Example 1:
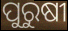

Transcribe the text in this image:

ପୁରୁଷୀ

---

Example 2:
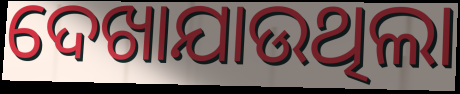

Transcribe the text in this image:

ଦେଖାଯାଉଥିଲା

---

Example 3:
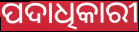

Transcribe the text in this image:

ପଦାଧିକାରୀ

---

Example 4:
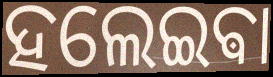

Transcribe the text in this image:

ହଲେଇଵା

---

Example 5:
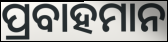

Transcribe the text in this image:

ପ୍ରବାହମାନ